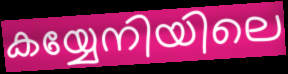
കയ്യേനിയിലെ